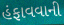
હંફાવવાની